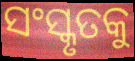
ସଂସ୍କୃତକୁ